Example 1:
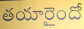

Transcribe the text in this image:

తయారైందో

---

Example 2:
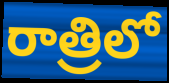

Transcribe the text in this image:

రాత్రిలో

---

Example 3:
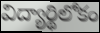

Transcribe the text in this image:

విద్యార్థిలోకం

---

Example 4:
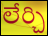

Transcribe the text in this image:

లేర్చి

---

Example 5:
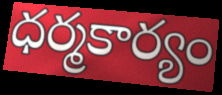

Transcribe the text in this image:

ధర్మకార్యం